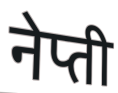
नेप्ती